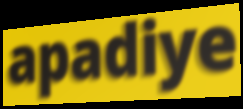
apadiye